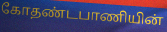
கோதண்டபாணியின்